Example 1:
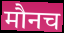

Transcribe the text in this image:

मौनच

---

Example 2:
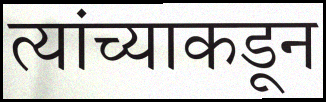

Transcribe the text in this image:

त्यांच्याकडून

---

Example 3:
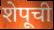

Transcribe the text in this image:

शेपूची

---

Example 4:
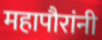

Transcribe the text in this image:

महापौरांनी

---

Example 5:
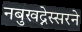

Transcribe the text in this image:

नबुखद्नेस्सरने